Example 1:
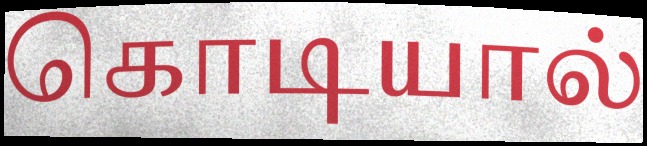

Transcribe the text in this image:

கொடியால்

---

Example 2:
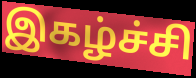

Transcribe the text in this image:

இகழ்ச்சி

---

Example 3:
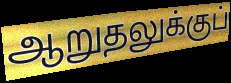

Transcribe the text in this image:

ஆறுதலுக்குப்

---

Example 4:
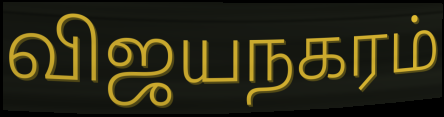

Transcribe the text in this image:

விஜயநகரம்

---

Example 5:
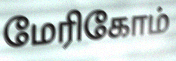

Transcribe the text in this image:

மேரிகோம்